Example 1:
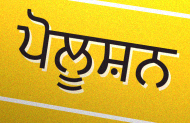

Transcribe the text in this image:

ਪੋਲੂਸ਼ਨ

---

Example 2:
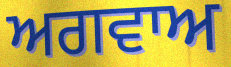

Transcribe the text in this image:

ਅਗਵਾਅ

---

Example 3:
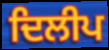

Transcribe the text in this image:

ਦਿਲੀਪ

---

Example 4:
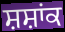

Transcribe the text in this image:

ਸ਼ਸ਼ਾਂਕ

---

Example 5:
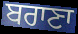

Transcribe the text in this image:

ਬਰਾਣਾ